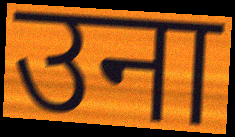
उना